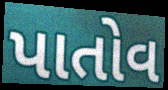
પાતોવ